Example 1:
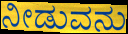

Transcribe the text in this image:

ನೀಡುವನು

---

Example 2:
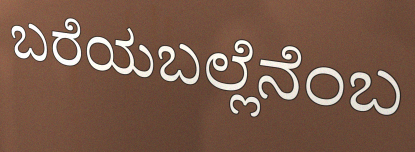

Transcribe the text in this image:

ಬರೆಯಬಲ್ಲೆನೆಂಬ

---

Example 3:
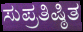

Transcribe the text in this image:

ಸುಪ್ರತಿಷ್ಠಿತ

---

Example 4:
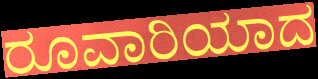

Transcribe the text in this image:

ರೂವಾರಿಯಾದ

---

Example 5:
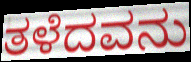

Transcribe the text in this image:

ತಳೆದವನು